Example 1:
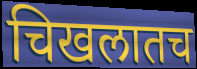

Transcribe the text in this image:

चिखलातच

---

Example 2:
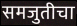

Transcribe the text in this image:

समजुतीचा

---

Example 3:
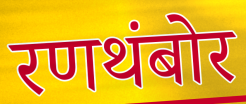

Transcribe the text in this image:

रणथंबोर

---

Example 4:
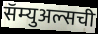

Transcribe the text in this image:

सॅम्युअल्सची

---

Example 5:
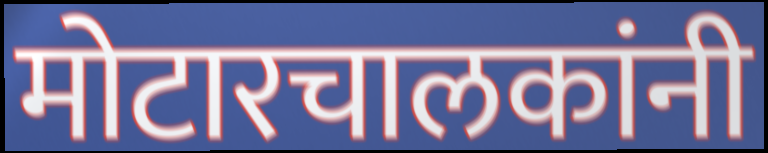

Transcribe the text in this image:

मोटारचालकांनी